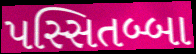
પસ્સિતબ્બા